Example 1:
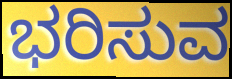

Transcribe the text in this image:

ಭರಿಸುವ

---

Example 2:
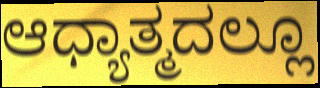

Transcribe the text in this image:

ಆಧ್ಯಾತ್ಮದಲ್ಲೂ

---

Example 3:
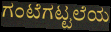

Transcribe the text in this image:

ಗಂಟೆಗಟ್ಟಲೆಯ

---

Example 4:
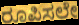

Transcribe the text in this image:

ರೂಪಿಸಲೇ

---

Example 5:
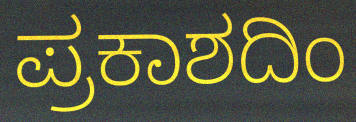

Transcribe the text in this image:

ಪ್ರಕಾಶದಿಂ